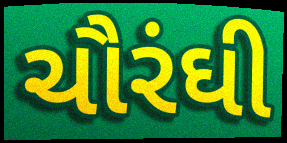
ચૌરંઘી